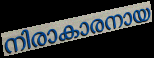
നിരാകാരനായ